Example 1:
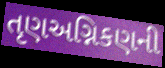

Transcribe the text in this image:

તૃણઅગ્નિકણની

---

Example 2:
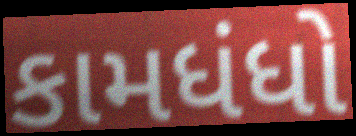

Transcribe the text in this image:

કામધંધો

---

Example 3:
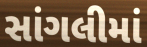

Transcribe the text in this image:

સાંગલીમાં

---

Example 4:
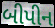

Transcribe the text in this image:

બીપીન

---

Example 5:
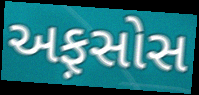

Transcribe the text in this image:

અફ઼સોસ